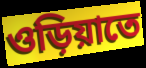
ওড়িয়াতে